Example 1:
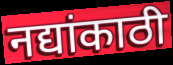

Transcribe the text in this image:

नद्यांकाठी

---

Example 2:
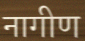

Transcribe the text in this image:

नागीण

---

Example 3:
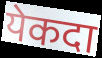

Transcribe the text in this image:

येकदा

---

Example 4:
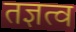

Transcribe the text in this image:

तज्ञत्व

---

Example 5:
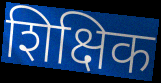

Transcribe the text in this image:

शिक्षिक